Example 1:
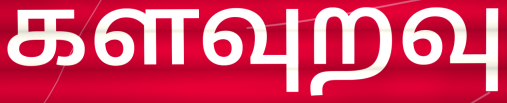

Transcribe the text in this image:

களவுறவு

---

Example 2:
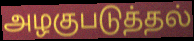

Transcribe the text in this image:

அழகுபடுத்தல்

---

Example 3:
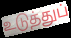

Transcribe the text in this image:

உடுத்துப்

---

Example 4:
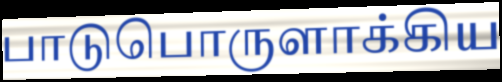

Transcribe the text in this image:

பாடுபொருளாக்கிய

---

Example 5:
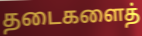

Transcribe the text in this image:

தடைகளைத்